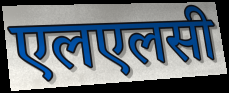
एलएलसी